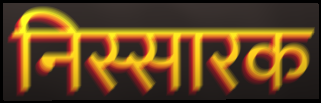
निस्सारक